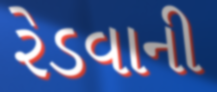
રેડવાની